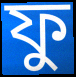
ফু